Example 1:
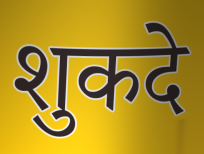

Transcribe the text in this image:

शुकदे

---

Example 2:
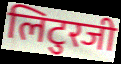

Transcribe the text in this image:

लिटुरजी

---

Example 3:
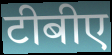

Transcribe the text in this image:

टीबीए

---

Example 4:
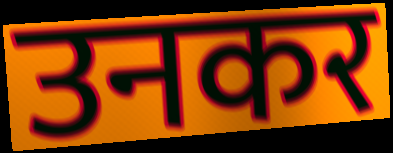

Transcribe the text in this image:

उनकर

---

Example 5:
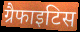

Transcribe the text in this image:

ग्रैफाइटिस